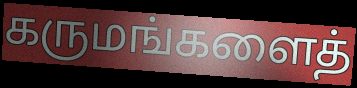
கருமங்களைத்